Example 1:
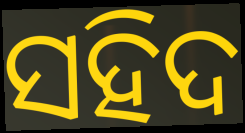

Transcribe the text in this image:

ସହିଦ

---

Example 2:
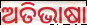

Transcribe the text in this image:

ଅତିଭାଷା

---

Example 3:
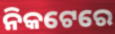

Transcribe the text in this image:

ନିକଟେରେ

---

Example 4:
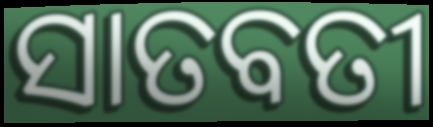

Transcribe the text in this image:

ସାତବତୀ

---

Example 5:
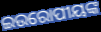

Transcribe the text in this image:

ଇଉରୋପୀୟଙ୍କ